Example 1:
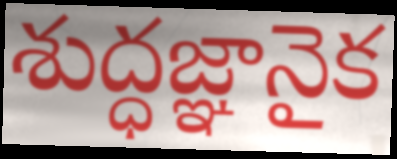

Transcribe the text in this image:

శుద్ధజ్ఞానైక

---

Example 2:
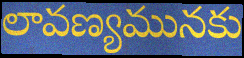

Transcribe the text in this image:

లావణ్యమునకు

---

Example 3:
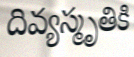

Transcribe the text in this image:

దివ్యస్మృతికి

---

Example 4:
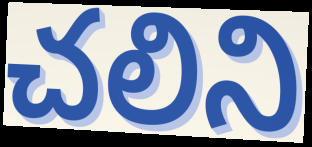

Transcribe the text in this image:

చలిని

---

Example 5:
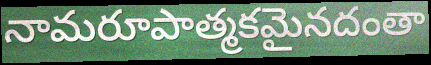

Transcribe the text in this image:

నామరూపాత్మకమైనదంతా